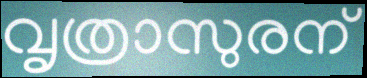
വൃത്രാസുരന്